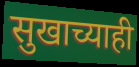
सुखाच्याही